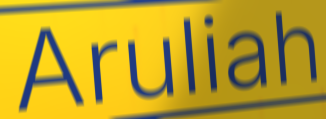
Aruliah